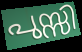
പുസ്സി